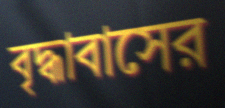
বৃদ্ধাবাসের